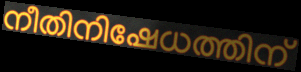
നീതിനിഷേധത്തിന്